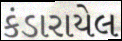
કંડારાયેલ